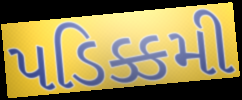
પડિક્કમી